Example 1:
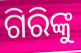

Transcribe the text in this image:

ଗିରିଙ୍କୁ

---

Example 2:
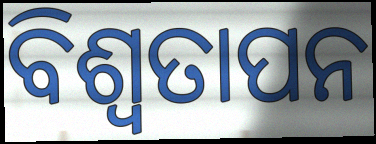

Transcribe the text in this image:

ବିଶ୍ବତାପନ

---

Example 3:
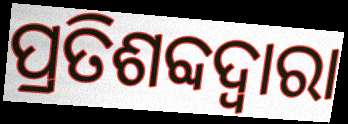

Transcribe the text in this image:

ପ୍ରତିଶବ୍ଦଦ୍ୱାରା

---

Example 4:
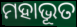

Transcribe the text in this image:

ମହାଭୂତ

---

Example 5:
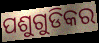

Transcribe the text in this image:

ପଶୁଗୁଡିକର